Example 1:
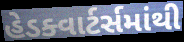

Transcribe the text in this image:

હેડક્વાર્ટર્સમાંથી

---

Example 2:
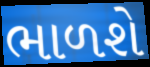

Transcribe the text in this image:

ભાળશે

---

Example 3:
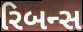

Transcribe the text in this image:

રિબન્સ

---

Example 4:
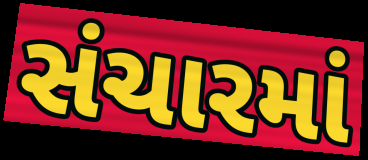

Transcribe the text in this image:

સંચારમાં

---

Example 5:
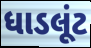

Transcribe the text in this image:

ધાડલૂંટ